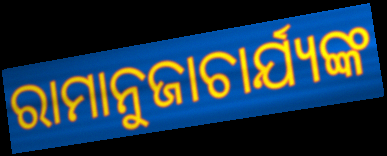
ରାମାନୁଜାଚାର୍ଯ୍ୟଙ୍କ